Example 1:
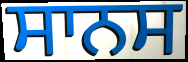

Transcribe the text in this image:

ਸਾਨਸ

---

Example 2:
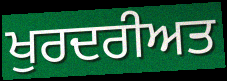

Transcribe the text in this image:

ਖੁਰਦਰੀਅਤ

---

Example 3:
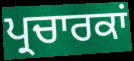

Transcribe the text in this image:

ਪ੍ਰਚਾਰਕਾਂ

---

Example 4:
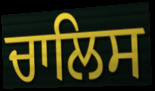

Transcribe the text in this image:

ਚਾਲਿਸ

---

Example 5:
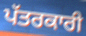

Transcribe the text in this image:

ਪੱਤਰਕਾਰੀ